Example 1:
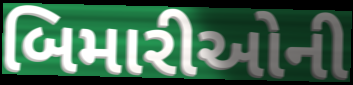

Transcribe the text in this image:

બિમારીઓની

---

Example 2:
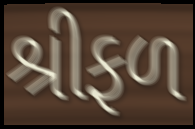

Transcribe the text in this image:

શ્રીફળ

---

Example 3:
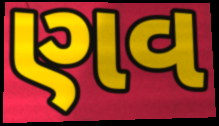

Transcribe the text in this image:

ણવ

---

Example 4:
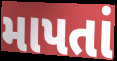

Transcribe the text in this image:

માપતાં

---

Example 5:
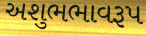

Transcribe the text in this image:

અશુભભાવરૂપ